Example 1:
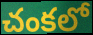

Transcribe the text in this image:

చంకలో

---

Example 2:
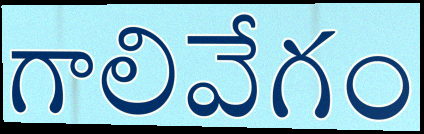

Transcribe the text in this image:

గాలివేగం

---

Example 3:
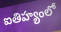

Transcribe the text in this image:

ఐతిహ్యంలో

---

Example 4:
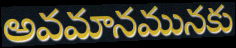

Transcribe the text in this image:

అవమానమునకు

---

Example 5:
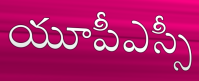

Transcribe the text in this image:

యూపీఎస్సీ